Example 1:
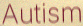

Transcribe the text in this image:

Autism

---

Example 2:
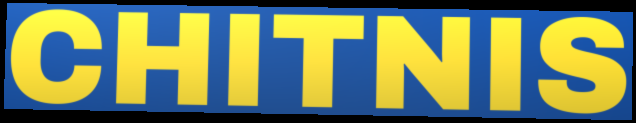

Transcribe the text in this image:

CHITNIS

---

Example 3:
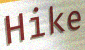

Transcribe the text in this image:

Hike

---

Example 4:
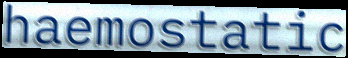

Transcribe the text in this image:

haemostatic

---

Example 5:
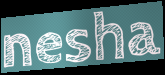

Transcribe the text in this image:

nesha